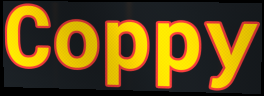
Coppy